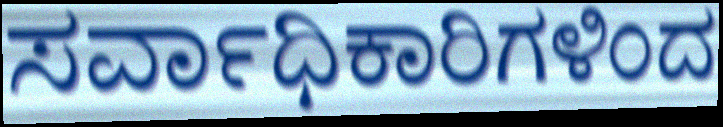
ಸರ್ವಾಧಿಕಾರಿಗಳಿಂದ